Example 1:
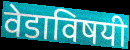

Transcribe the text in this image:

वेडाविषयी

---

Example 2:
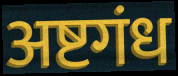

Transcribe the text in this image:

अष्टगंध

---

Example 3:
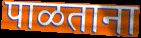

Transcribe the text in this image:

पाळताना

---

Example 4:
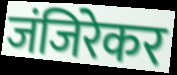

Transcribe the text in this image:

जंजिरेकर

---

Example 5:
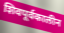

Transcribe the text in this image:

शिवपूर्वकालीन